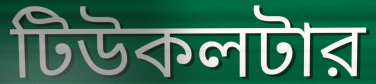
টিউকলটার